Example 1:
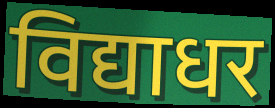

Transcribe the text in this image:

विद्याधर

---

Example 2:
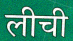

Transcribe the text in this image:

लीची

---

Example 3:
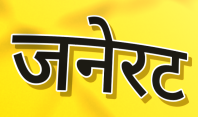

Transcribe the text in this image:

जनेरट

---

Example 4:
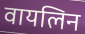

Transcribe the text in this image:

वायलिन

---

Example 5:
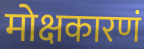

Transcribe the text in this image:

मोक्षकारणं